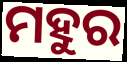
ମହୁର